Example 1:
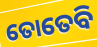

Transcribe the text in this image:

ତୋତେବି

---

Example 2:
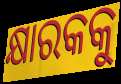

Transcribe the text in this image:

କ୍ଷାରକକୁ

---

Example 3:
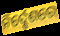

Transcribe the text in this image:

ନିର୍ଦ୍ଦେଶରେ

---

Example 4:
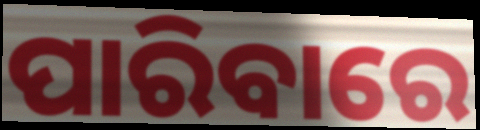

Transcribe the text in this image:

ପାରିବାରେ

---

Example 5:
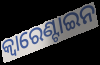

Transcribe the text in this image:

କ୍ୱାରେଣ୍ଟାଇନ